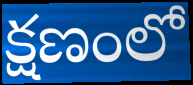
క్షణంలో